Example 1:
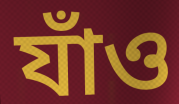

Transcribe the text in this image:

যাঁও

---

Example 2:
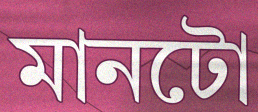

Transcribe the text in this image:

মানটো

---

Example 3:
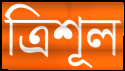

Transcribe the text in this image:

ত্ৰিশূল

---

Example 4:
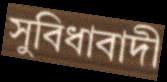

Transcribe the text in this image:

সুবিধাবাদী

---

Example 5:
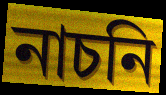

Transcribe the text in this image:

নাচনি